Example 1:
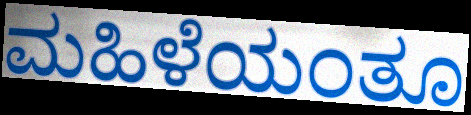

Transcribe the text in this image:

ಮಹಿಳೆಯಂತೂ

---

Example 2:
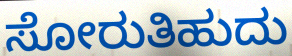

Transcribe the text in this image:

ಸೋರುತಿಹುದು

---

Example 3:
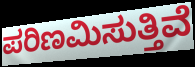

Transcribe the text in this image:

ಪರಿಣಮಿಸುತ್ತಿವೆ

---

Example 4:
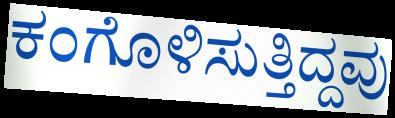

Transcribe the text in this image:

ಕಂಗೊಳಿಸುತ್ತಿದ್ದವು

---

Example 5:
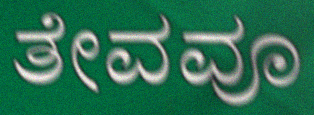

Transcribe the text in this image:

ತೇವವೂ